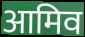
आमिव